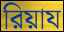
রিয়ায